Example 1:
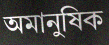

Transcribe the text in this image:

অমানুষিক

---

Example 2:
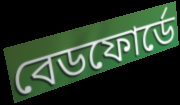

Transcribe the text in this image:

বেডফোর্ডে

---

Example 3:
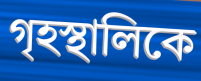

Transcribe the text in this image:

গৃহস্থালিকে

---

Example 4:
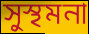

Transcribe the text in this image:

সুস্থমনা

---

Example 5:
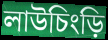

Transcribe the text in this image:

লাউচিংড়ি